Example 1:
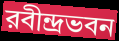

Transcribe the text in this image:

রবীন্দ্রভবন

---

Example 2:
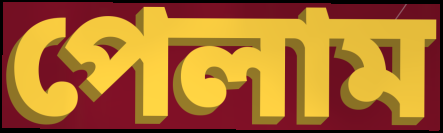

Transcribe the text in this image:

পেলাম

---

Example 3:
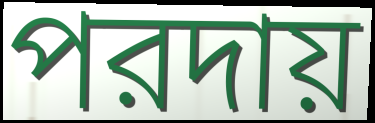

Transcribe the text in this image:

পরদায়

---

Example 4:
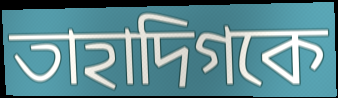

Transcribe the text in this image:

তাহাদিগকে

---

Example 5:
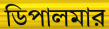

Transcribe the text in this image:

ডিপালমার